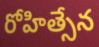
రోహిత్సేన